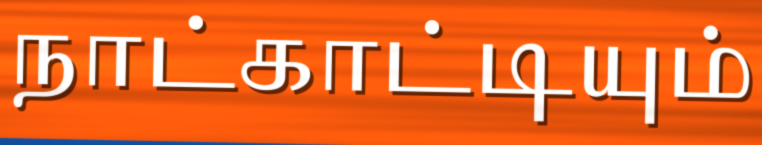
நாட்காட்டியும்